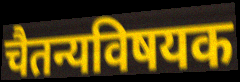
चैतन्यविषयक